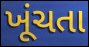
ખૂંચતા